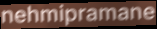
nehmipramane